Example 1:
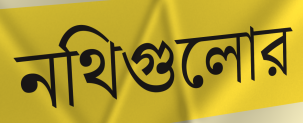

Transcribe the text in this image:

নথিগুলোর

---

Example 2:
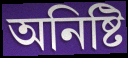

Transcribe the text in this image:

অনিষ্টি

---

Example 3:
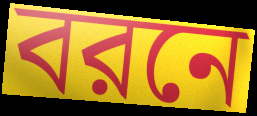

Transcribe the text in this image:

বরনে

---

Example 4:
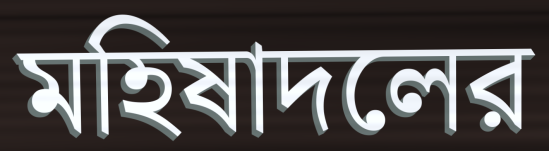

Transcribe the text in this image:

মহিষাদলের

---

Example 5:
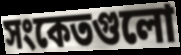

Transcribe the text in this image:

সংকেতগুলো